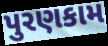
પુરણકામ